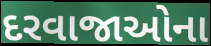
દરવાજાઓના